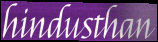
hindusthan